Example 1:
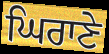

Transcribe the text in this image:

ਘਿਰਾਣੇ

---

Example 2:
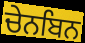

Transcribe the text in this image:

ਚੇਨਬਿਨ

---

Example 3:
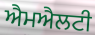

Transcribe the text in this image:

ਐਮਐਲਟੀ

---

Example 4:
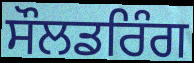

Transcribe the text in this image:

ਸੌਲਡਰਿੰਗ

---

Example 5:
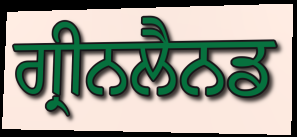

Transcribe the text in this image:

ਗ੍ਰੀਨਲੈਨਡ